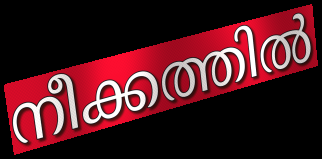
നീക്കത്തിൽ